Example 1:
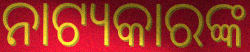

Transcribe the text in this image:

ନାଟ୍ୟକାରଙ୍କ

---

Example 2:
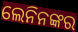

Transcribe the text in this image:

ଲେନିନଙ୍କର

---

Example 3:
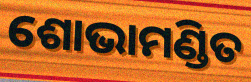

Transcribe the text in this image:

ଶୋଭାମଣ୍ଡିତ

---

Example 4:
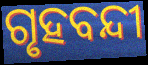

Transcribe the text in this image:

ଗୃହବନ୍ଦୀ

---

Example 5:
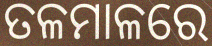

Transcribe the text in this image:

ତଳମାଳରେ